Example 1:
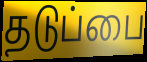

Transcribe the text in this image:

தடுப்பை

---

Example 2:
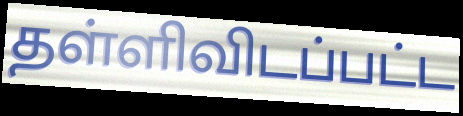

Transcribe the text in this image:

தள்ளிவிடப்பட்ட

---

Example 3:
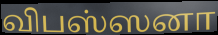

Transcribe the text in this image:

விபஸ்ஸனா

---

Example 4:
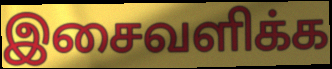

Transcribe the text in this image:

இசைவளிக்க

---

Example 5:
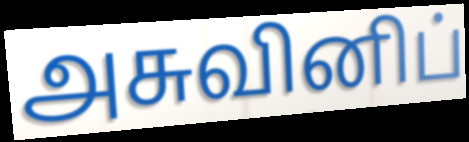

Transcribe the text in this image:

அசுவினிப்